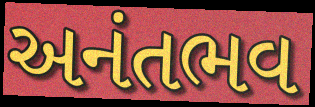
અનંતભવ